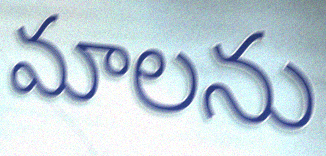
మాలను